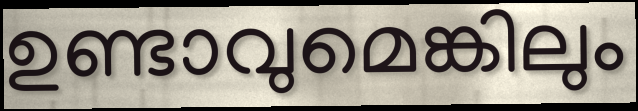
ഉണ്ടാവുമെങ്കിലും